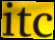
itc